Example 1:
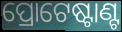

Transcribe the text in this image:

ପ୍ରୋଟେଷ୍ଟାଣ୍ଟ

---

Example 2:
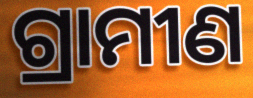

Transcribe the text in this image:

ଗ୍ରାମୀଣ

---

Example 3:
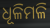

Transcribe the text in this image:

ଧୂଳିମଳି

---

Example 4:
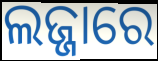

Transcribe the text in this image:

ଲଜ୍ଜାରେ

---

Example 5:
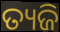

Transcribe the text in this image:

ତ୍ୟଜି